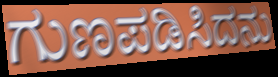
ಗುಣಪಡಿಸಿದನು